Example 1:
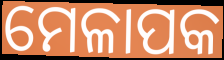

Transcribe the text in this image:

ମେଳାପକ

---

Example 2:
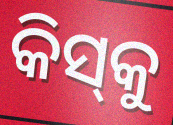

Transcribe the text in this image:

କିସ୍‌କୁ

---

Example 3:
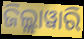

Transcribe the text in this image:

ଜିଲ୍ଲାୱାରି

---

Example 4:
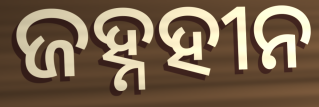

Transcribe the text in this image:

ଜହ୍ନହୀନ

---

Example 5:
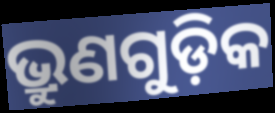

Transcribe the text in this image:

ଭ୍ରୁଣଗୁଡ଼ିକ